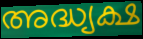
അദ്ധ്യക്ഷ